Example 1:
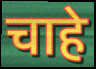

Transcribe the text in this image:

चाहे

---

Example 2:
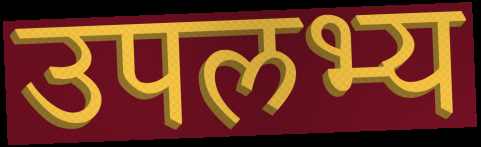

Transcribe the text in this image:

उपलभ्य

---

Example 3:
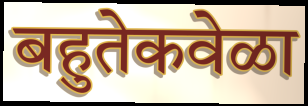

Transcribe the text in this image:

बहुतेकवेळा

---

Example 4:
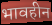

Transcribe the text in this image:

भावहीन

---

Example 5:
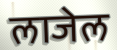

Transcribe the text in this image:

लाजेल